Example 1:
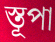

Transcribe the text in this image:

স্তূপা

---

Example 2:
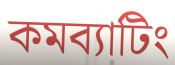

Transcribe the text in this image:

কমব্যাটিং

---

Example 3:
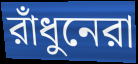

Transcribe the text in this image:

রাঁধুনেরা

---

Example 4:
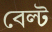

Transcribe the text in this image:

বেল্ট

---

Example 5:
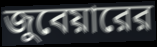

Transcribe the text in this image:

জুবেয়ারের